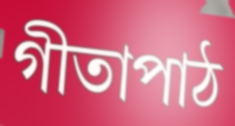
গীতাপাঠ